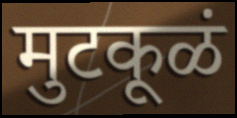
मुटकूळं